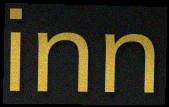
inn